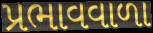
પ્રભાવવાળા